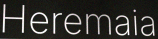
Heremaia